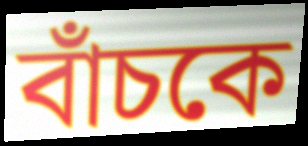
বাঁচকে